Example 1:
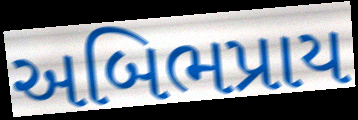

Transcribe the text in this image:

અબિભપ્રાય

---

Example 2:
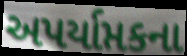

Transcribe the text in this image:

અપર્યાપ્તકના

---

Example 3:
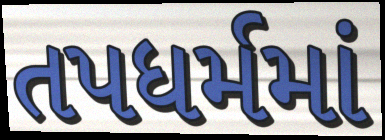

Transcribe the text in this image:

તપધર્મમાં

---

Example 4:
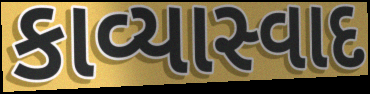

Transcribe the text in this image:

કાવ્યાસ્વાદ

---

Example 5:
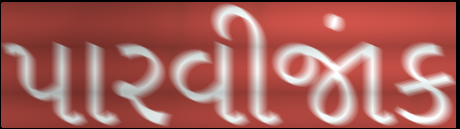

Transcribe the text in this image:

પારવીજાંક